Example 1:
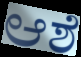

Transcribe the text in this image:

ಆಶೆ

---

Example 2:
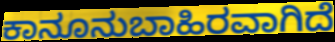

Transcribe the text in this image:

ಕಾನೂನುಬಾಹಿರವಾಗಿದೆ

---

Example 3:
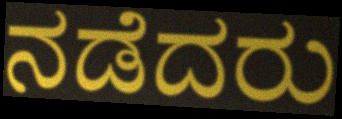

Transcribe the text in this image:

ನಡೆದರು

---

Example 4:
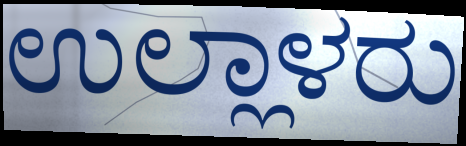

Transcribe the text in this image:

ಉಲ್ಲಾಳರು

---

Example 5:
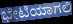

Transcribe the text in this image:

ಭೇಟಿಯಾಗಲಿ